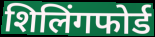
शिलिंगफोर्ड